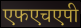
एफएचएपी